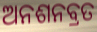
ଅନଶନବ୍ରତ